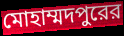
মোহাম্মদপুরের